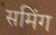
समिंग